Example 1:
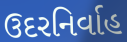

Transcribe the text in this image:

ઉદરનિર્વાહ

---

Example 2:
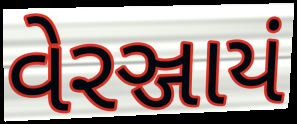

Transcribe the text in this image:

વેરઞ્જાયં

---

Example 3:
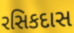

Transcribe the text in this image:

રસિકદાસ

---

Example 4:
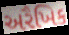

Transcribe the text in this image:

અરૈખિક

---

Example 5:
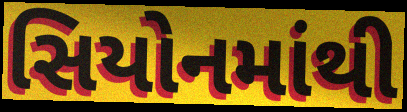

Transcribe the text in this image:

સિયોનમાંથી